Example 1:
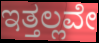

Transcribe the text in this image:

ಇತ್ತಲ್ಲವೇ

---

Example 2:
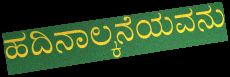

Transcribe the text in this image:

ಹದಿನಾಲ್ಕನೆಯವನು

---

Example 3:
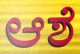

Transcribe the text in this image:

ಆಶೆ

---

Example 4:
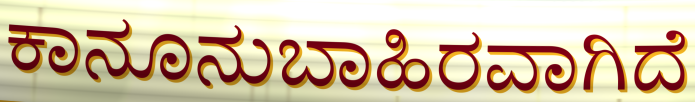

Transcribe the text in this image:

ಕಾನೂನುಬಾಹಿರವಾಗಿದೆ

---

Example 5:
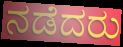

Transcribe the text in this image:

ನಡೆದರು